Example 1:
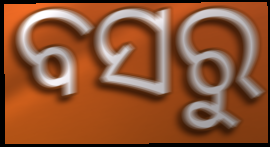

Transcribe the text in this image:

ବସରୁ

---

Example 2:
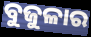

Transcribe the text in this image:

ବୁଜୁଳାର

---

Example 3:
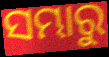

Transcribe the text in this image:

ସମ୍ଭାରୁ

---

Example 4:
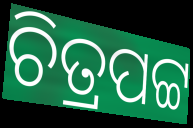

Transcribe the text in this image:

ଚିତ୍ରପଟ୍ଟ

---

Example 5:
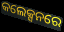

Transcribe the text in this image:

କଲେକ୍ସନରେ